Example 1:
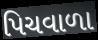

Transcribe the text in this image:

પિચવાળા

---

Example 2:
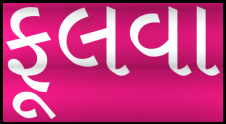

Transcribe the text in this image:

ફૂલવા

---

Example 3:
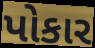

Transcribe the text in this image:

પોકાર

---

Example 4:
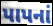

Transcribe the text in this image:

પાપનાં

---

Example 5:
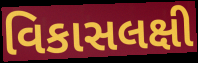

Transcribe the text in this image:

વિકાસલક્ષી